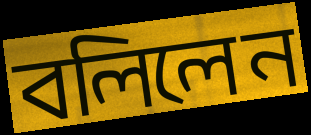
বলিলেন